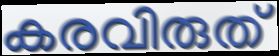
കരവിരുത്